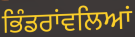
ਭਿੰਡਰਾਂਵਲਿਆਂ